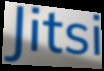
Jitsi